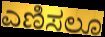
ಎಣಿಸಲೂ